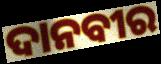
ଦାନବୀର